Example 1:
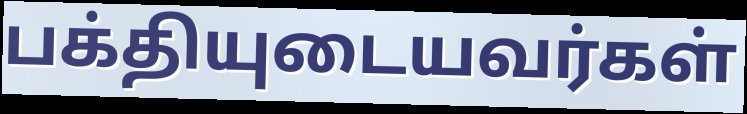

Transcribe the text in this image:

பக்தியுடையவர்கள்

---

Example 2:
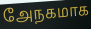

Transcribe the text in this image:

அேநகமாக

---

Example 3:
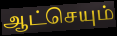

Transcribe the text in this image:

ஆட்செயும்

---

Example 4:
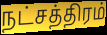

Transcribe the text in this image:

நட்சத்திரம்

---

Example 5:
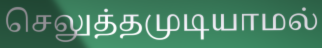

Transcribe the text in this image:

செலுத்தமுடியாமல்